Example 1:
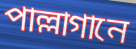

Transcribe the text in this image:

পাল্লাগানে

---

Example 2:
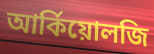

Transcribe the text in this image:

আর্কিয়োলজি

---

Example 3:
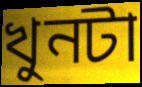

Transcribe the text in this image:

খুনটা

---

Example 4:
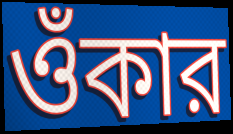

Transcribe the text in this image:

ওঁকার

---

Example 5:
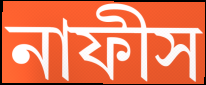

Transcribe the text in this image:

নাফীস